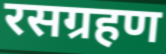
रसग्रहण